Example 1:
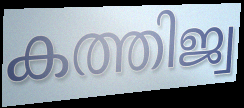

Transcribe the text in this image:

കത്തിജ്വ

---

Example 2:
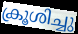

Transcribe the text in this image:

ക്രൂശിച്ചു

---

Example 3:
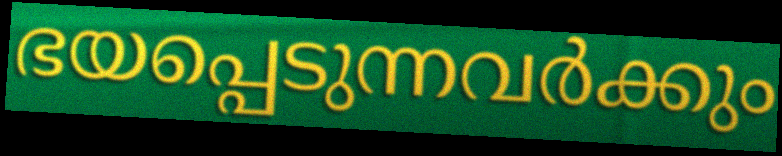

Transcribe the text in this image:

ഭയപ്പെടുന്നവർക്കും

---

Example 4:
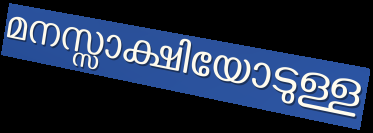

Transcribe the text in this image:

മനസ്സാക്ഷിയോടുള്ള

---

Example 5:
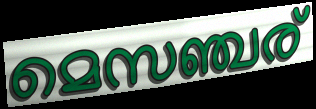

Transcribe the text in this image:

മെസഞ്ചര്